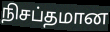
நிசப்தமான